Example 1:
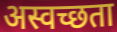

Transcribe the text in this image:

अस्वच्छता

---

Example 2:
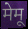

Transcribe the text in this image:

मेमू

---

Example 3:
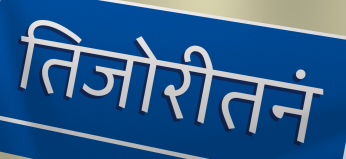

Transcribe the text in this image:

तिजोरीतनं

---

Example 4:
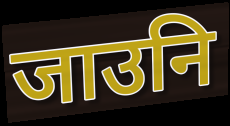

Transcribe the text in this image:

जाउनि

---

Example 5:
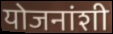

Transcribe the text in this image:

योजनांशी